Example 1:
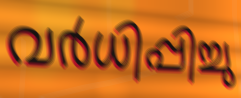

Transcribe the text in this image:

വർധിപ്പിച്ചു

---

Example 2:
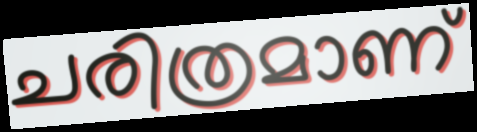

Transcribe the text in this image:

ചരിത്രമാണ്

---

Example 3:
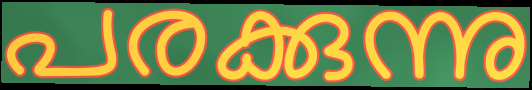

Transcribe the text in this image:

പരക്കുന്നു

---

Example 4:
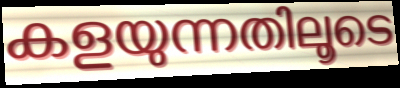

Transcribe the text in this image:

കളയുന്നതിലൂടെ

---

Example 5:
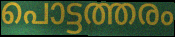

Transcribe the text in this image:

പൊട്ടത്തരം